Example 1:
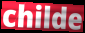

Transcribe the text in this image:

childe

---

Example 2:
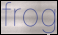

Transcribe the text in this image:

frog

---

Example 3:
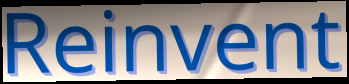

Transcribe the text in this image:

Reinvent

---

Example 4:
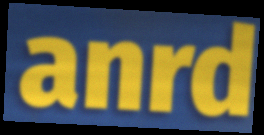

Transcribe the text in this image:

anrd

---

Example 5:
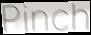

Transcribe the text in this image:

Pinch